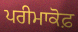
ਪਰੀਮਾਕੋਫ਼